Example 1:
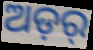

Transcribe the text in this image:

ଅଡ଼ର୍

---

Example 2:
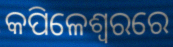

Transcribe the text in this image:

କପିଳେଶ୍ୱରରେ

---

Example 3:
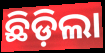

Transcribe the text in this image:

ଛିଡ଼ିଲା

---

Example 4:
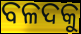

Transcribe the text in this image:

ବଳଦକୁ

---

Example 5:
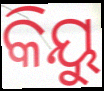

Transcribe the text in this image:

କିୟୁ